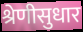
श्रेणीसुधार